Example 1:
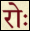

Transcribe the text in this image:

रोः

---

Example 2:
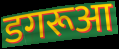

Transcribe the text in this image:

डगरूआ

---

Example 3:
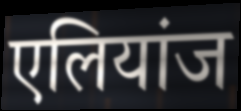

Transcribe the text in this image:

एलियांज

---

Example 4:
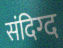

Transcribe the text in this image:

संदिग्द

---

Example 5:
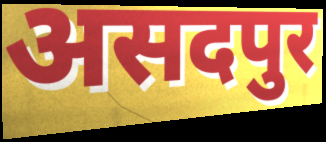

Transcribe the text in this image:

असदपुर